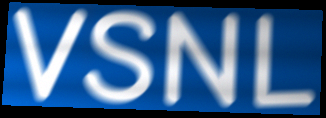
VSNL